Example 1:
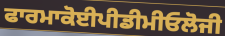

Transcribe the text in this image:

ਫਾਰਮਾਕੋਈਪੀਡੀਮੀਓਲੋਜੀ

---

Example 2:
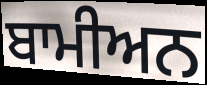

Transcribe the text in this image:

ਬਾਮੀਅਨ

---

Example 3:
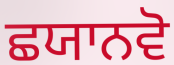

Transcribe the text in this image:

ਛਯਾਨਵੋ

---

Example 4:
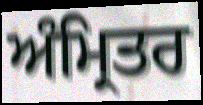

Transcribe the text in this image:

ਅੰਮ੍ਰਿਤਰ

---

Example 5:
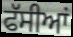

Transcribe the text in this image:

ਫੱਸੀਆਂ